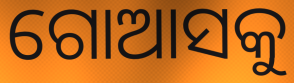
ଗୋଆସକୁ